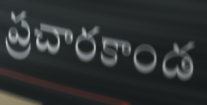
ప్రచారకాండ